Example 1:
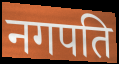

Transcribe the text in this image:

नगपति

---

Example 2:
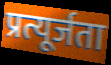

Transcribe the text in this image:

प्रत्यूर्जता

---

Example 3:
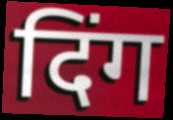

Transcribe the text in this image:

दिंग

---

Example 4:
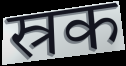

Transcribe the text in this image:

स्रक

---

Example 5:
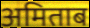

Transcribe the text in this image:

अमिताब